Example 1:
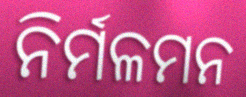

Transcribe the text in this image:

ନିର୍ମଳମନ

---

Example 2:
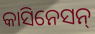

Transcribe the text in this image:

କାସିନେସନ୍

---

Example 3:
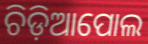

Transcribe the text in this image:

ଚିଡ଼ିଆପୋଲ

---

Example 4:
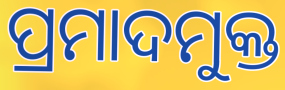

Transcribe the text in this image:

ପ୍ରମାଦମୁକ୍ତ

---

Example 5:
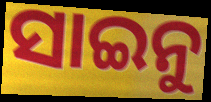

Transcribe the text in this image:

ସାଇନୁ